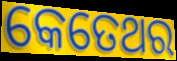
କେତେଥର